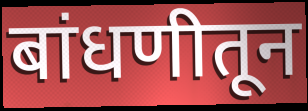
बांधणीतून